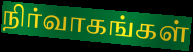
நிர்வாகங்கள்